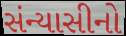
સંન્યાસીનો